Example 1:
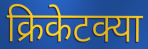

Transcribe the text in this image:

क्रिकेटक्या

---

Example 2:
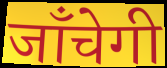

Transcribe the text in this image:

जाँचेगी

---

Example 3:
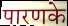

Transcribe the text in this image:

पारणके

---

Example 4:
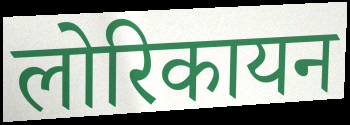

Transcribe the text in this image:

लोरिकायन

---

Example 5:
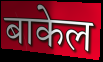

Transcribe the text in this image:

बाकेल